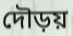
দৌড়য়